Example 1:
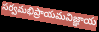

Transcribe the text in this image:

సర్వమభిప్రాయమవిజ్ఞాయ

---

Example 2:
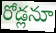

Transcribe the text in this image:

రోడ్లనూ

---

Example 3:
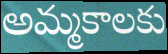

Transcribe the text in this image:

అమ్మకాలకు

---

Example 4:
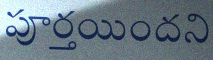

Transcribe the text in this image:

పూర్తయిందని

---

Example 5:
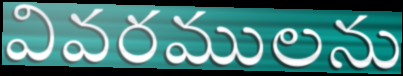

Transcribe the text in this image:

వివరములను